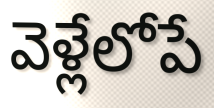
వెళ్లేలోపే